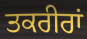
ਤਕਰੀਰਾਂ